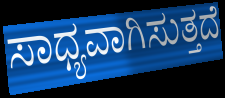
ಸಾಧ್ಯವಾಗಿಸುತ್ತದೆ